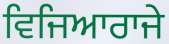
ਵਿਜਿਆਰਾਜੇ